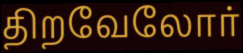
திறவேலோர்